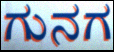
ಗುನಗ